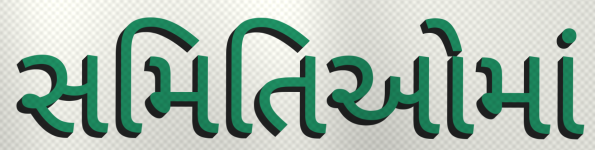
સમિતિઓમાં